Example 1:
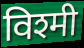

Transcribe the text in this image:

विश्मी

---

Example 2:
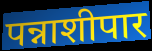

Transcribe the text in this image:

पन्नाशीपार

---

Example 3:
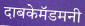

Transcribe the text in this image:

दाबकेमॅडमनी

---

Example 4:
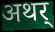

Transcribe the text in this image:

अथर्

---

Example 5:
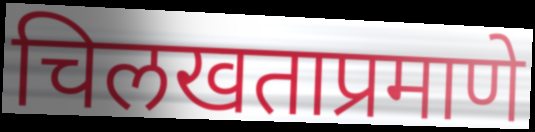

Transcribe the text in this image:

चिलखताप्रमाणे